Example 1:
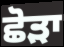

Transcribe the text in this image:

ਛੋੜਾ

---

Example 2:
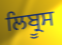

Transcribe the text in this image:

ਲਿਬ੍ਰੂਸ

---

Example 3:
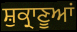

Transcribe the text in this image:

ਸ਼ੁਕ੍ਰਾਣੂਆਂ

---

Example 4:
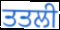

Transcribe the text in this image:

ਤਤਲੀ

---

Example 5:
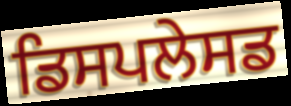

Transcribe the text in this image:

ਡਿਸਪਲੇਸਡ